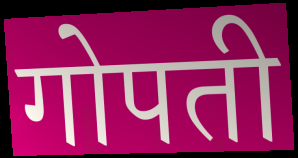
गोपती